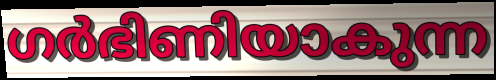
ഗർഭിണിയാകുന്ന